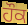
ਹੌਕ